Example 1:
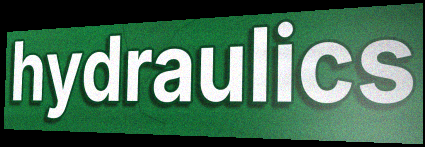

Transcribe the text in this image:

hydraulics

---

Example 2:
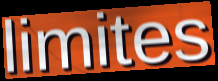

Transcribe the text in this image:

limites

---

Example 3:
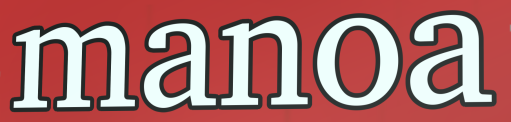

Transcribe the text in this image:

manoa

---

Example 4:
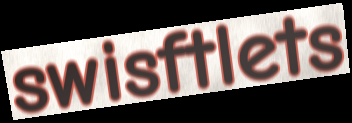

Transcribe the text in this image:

swisftlets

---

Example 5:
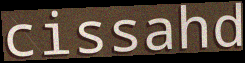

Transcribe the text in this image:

cissahd